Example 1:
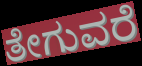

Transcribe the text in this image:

ತೇಗುವರೆ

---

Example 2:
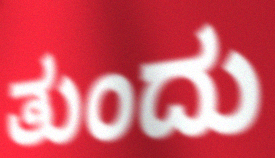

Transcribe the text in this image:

ತುಂದು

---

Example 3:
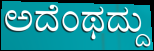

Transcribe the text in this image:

ಅದೆಂಥದ್ದು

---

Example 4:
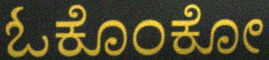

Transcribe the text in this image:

ಓಕೊಂಕೋ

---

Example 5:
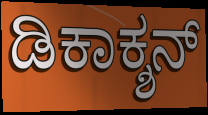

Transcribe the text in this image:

ಡಿಕಾಕ್ಶನ್